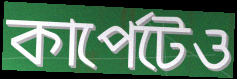
কার্পেটেও